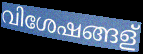
വിശേഷങ്ങള്